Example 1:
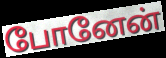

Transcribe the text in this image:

போனேன்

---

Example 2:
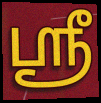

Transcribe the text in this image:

ஸ்ரீ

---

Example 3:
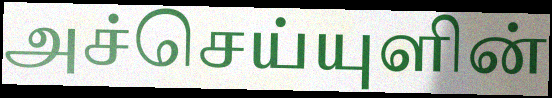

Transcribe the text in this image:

அச்செய்யுளின்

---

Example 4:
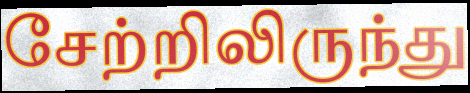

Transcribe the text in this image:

சேற்றிலிருந்து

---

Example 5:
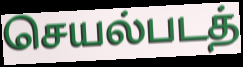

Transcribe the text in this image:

செயல்படத்